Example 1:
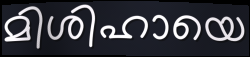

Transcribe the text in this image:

മിശിഹായെ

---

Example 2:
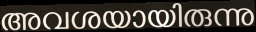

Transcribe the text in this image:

അവശയായിരുന്നു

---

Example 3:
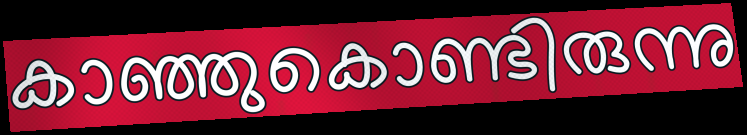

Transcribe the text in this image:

കാഞ്ഞുകൊണ്ടിരുന്നു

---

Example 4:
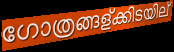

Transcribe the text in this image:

ഗോത്രങ്ങള്ക്കിടയില്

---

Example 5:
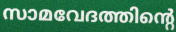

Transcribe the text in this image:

സാമവേദത്തിന്റെ